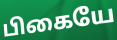
பிகையே